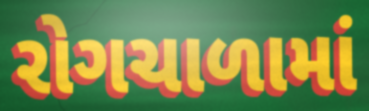
રોગચાળામાં